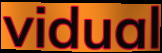
vidual